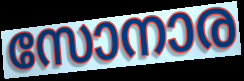
സോനാര